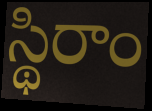
స్థిరాం